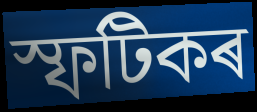
স্ফটিকৰ